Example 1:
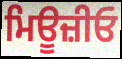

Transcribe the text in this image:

ਮਿਊਜ਼ੀਓ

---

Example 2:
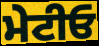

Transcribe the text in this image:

ਮੇਟੀਓ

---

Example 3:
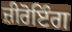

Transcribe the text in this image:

ਜ਼ੀਰੋਇੰਗ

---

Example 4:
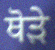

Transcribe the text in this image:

ਥੋਡ਼ੇ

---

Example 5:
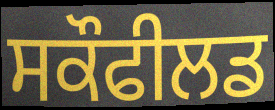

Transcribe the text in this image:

ਸਕੌਫੀਲਡ